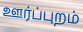
ஊர்ப்புறம்